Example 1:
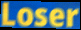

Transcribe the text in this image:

Loser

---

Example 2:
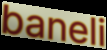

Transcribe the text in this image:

baneli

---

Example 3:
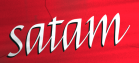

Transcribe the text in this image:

satam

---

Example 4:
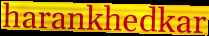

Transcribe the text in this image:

harankhedkar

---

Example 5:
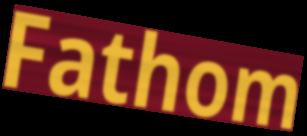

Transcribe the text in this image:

Fathom